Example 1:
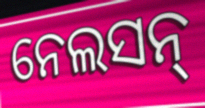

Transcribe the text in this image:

ନେଲସନ୍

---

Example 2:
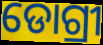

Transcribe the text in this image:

ଡୋଗ୍ରୀ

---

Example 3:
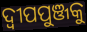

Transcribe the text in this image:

ଦ୍ଵୀପପୁଞ୍ଜକୁ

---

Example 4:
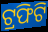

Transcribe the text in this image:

ଟ୍ରଫିଟି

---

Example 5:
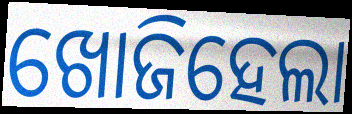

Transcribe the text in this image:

ଖୋଜିହେଲା